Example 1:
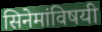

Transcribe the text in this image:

सिनेमांविषयी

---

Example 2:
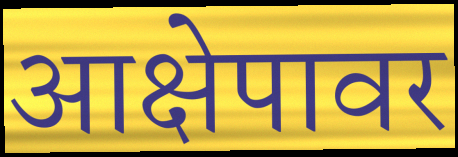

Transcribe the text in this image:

आक्षेपावर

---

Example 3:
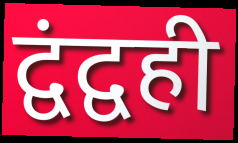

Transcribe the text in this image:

द्वंद्वही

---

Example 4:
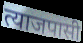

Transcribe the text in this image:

त्याजपासी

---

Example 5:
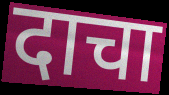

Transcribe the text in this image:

दाचा